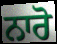
ਨਾਰੋ